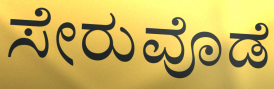
ಸೇರುವೊಡೆ